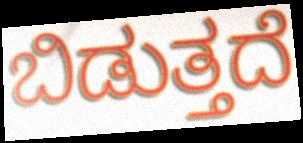
ಬಿಡುತ್ತದೆ